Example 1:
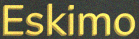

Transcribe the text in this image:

Eskimo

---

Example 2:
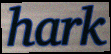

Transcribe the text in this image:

hark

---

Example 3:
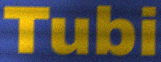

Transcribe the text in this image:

Tubi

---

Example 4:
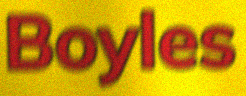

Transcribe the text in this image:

Boyles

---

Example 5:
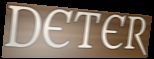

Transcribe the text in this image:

DETER